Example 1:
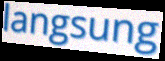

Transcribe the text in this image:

langsung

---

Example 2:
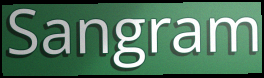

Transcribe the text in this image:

Sangram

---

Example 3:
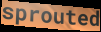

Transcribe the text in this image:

sprouted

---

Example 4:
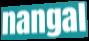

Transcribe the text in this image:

nangal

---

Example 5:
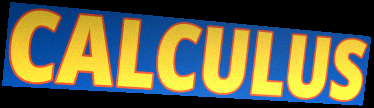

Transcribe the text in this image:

CALCULUS